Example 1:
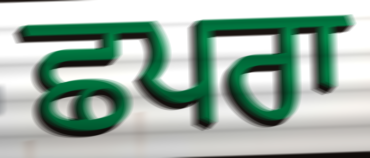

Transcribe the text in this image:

ਛਪਰਾ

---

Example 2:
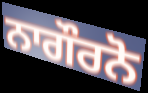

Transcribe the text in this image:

ਨਾਗੌਰਨੋ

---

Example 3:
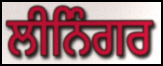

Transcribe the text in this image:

ਲੀਨਿੰਗਰ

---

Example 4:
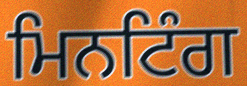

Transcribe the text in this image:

ਮਿਨਟਿੰਗ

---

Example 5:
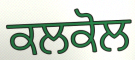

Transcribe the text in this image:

ਕਲਕੋਲ